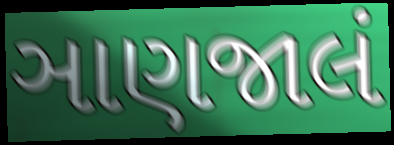
ઞાણજાલં